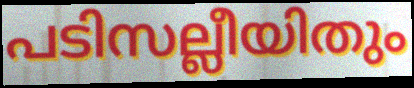
പടിസല്ലീയിതും